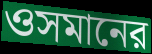
ওসমানের